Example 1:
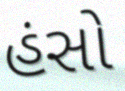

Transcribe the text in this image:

હંસો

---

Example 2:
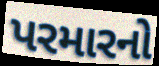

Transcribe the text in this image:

પરમારનો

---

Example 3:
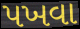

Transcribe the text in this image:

પખવા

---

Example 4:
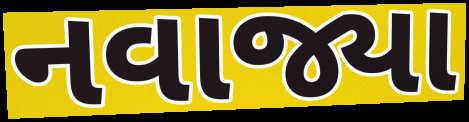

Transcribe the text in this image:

નવાજ્યા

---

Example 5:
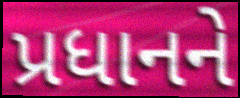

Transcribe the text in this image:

પ્રધાનને